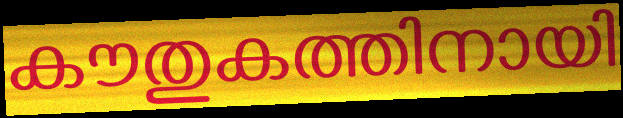
കൗതുകത്തിനായി